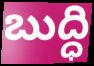
బుద్ధి